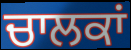
ਚਾਲਕਾਂ